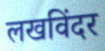
लखविंदर